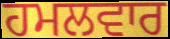
ਹਮਲਵਾਰ